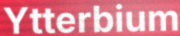
Ytterbium